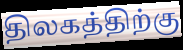
திலகத்திற்கு